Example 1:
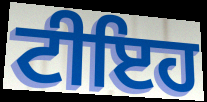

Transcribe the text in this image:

ਟੀਇਹ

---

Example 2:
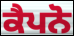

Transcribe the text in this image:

ਕੈਪਨੋ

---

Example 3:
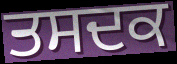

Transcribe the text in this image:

ਤਸਦਕ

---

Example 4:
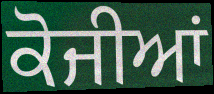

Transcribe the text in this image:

ਕੋਜੀਆਂ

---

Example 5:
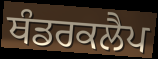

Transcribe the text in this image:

ਥੰਡਰਕਲੈਪ